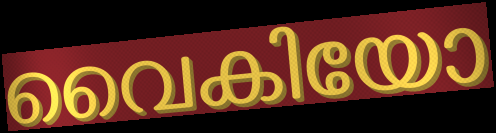
വൈകിയോ